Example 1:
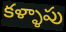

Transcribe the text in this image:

కళ్ళాపు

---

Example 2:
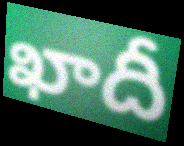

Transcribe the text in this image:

ఖాదీ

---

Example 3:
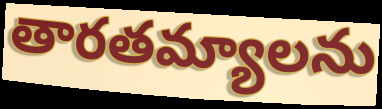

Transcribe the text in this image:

తారతమ్యాలను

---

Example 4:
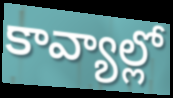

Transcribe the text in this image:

కావ్యాల్లో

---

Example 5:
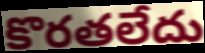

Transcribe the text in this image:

కొరతలేదు